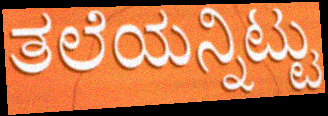
ತಲೆಯನ್ನಿಟ್ಟು